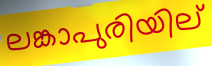
ലങ്കാപുരിയില്